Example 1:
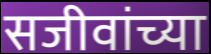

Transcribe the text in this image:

सजीवांच्या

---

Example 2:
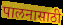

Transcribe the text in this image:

पालनासाठी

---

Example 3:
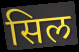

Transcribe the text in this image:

सिल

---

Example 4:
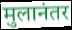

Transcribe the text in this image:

मुलानंतर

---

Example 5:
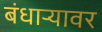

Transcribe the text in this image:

बंधाऱ्यावर